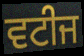
ਵਟੀਜ